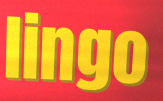
lingo